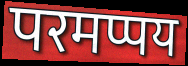
परमप्पय